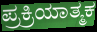
ಪ್ರಕ್ರಿಯಾತ್ಮಕ